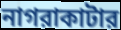
নাগরাকাটার